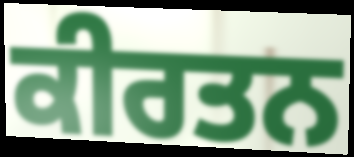
ਕੀਰਤਨ